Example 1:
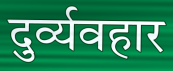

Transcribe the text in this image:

दुर्व्यवहार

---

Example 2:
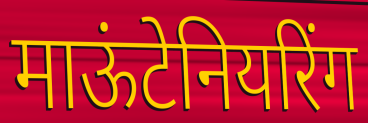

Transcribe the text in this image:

माऊंटेनियरिंग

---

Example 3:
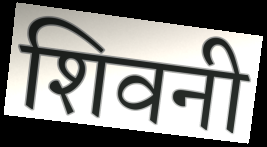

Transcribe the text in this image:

शिवनी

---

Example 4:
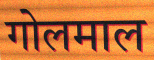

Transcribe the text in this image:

गोलमाल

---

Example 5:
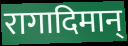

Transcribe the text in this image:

रागादिमान्